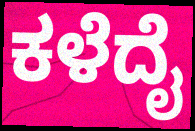
ಕಳೆದೈ